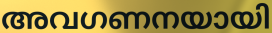
അവഗണനയായി